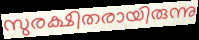
സുരക്ഷിതരായിരുന്നു